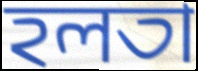
হলতা